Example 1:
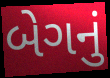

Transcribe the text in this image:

બેગનું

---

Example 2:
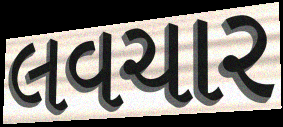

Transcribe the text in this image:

લવચાર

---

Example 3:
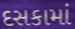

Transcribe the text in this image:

દસકામાં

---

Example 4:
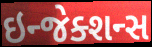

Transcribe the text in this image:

ઇન્જેક્શન્સ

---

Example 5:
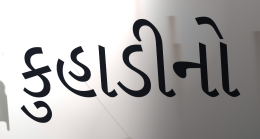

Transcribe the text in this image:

કુહાડીનો